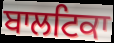
ਬਾਲਟਿਕਾ